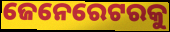
ଜେନେରେଟରକୁ